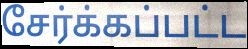
சேர்க்கப்பட்ட